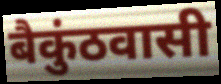
बैकुंठवासी